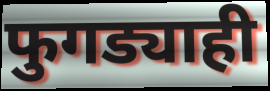
फुगड्याही